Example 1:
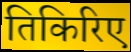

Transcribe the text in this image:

तिकिरिए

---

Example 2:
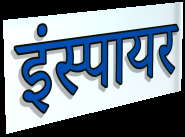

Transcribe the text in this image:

इंस्पायर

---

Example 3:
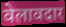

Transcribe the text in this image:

वेलावदार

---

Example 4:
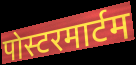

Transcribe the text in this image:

पोस्टरमार्टम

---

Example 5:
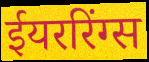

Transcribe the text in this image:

ईयररिंग्स